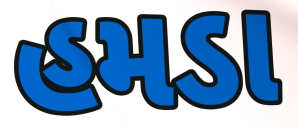
હમડા